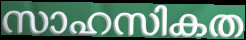
സാഹസികത